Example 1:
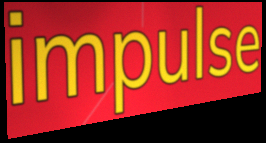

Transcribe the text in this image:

impulse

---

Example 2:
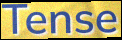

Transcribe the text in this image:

Tense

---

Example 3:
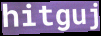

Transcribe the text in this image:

hitguj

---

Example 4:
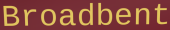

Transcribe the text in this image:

Broadbent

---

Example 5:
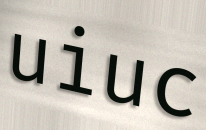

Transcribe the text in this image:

uiuc